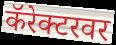
कॅरेक्टरवर